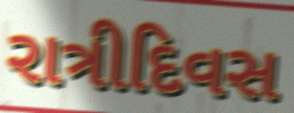
રાત્રીદિવસ